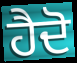
ਹੈਦੋ